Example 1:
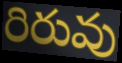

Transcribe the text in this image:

రిరువు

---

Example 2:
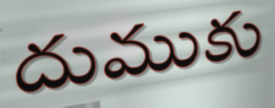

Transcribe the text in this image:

దుముకు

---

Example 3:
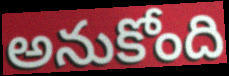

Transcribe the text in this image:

అనుకోంది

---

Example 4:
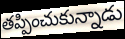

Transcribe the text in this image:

తప్పించుకున్నాడు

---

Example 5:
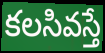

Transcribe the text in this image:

కలసివస్తే